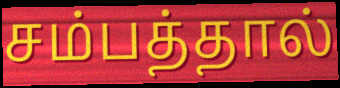
சம்பத்தால்